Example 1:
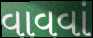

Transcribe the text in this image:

વાવવાં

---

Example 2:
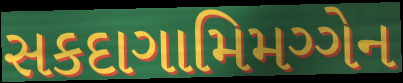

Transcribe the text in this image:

સકદાગામિમગ્ગેન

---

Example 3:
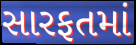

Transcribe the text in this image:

સારફતમાં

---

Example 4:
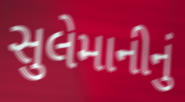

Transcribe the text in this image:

સુલેમાનીનું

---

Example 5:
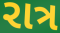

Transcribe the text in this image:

રાત્ર